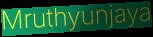
Mruthyunjaya